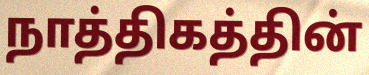
நாத்திகத்தின்